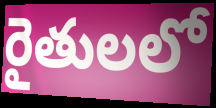
రైతులలో